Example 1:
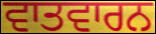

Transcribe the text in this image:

ਵਾਤਵਾਰਨ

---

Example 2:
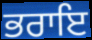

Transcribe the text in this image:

ਭਰਾਇ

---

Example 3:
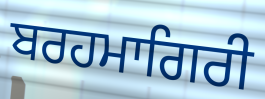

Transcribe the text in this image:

ਬਰਹਮਾਗਿਰੀ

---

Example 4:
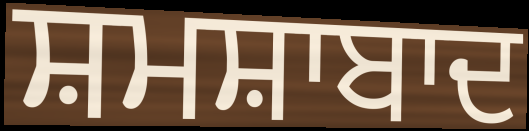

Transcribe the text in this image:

ਸ਼ਮਸ਼ਾਬਾਦ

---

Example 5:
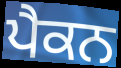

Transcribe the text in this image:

ਪੈਕਨ